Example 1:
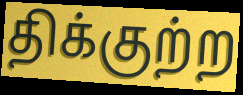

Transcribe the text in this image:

திக்குற்ற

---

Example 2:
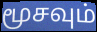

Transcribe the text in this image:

மூசவும்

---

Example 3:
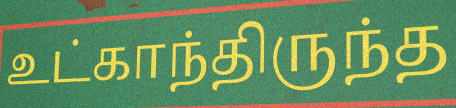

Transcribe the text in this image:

உட்காந்திருந்த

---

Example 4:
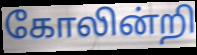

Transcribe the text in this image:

கோலின்றி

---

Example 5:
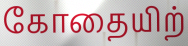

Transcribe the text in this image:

கோதையிற்